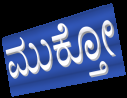
ಮುಕ್ತೋ